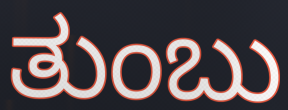
ತುಂಬು